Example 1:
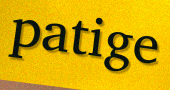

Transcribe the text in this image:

patige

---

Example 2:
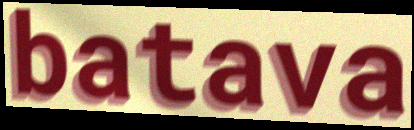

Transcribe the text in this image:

batava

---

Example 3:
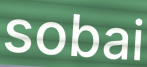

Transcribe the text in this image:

sobai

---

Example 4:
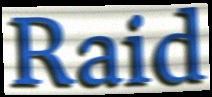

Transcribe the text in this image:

Raid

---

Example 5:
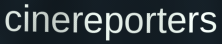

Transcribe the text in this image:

cinereporters